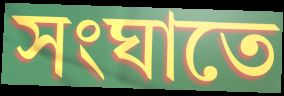
সংঘাতে